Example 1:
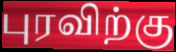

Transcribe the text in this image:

புரவிற்கு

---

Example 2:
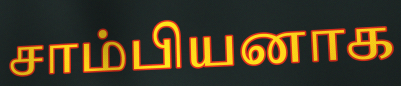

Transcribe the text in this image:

சாம்பியனாக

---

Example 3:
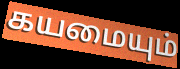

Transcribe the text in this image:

கயமையும்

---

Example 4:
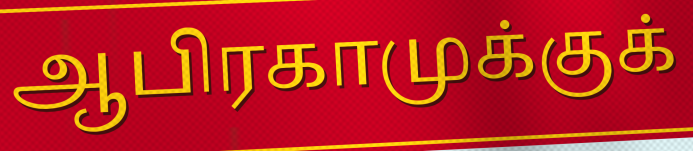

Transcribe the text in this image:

ஆபிரகாமுக்குக்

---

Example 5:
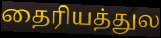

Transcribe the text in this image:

தைரியத்துல